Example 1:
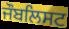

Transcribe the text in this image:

ਜੌਬਲਿਸਟ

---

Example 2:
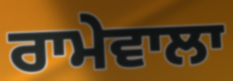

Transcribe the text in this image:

ਰਾਮੇਵਾਲਾ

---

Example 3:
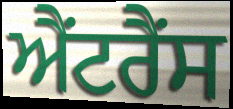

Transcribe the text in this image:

ਐਂਟਰੈਂਸ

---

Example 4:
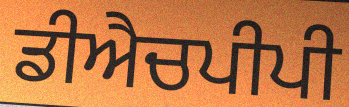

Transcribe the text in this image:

ਡੀਐਚਪੀਪੀ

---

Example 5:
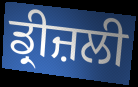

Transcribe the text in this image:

ਡ੍ਰੀਜ਼ਲੀ